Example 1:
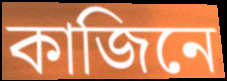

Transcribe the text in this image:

কাজিনে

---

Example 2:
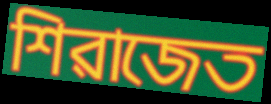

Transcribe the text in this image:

শিৱাজেত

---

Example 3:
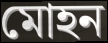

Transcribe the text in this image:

মোহন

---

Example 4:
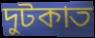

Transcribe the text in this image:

দুটকাত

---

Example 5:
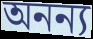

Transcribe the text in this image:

অনন্য